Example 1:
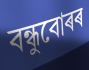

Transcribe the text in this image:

বন্ধুবোৰৰ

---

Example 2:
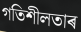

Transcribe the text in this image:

গতিশীলতাৰ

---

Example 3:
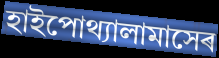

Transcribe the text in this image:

হাইপোথ্যালামাসেৰ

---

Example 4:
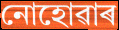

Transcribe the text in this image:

নোহোৱাৰ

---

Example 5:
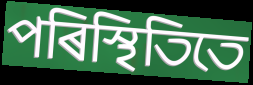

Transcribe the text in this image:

পৰিস্থিতিতে